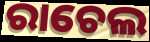
ରାଚେଲ